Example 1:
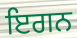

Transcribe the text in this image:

ਇਗਨ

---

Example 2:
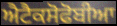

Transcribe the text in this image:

ਐਟੈਕਸੋਫੋਬੀਆ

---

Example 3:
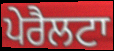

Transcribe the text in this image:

ਪੇਰੈਲਟਾ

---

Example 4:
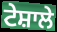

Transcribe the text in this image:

ਟੇਸ਼ਾਲੇ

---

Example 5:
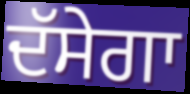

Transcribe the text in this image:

ਦੱਸੇਗਾ